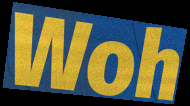
Woh